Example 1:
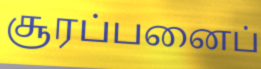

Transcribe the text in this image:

சூரப்பனைப்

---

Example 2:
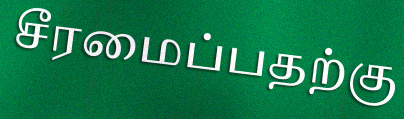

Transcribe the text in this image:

சீரமைப்பதற்கு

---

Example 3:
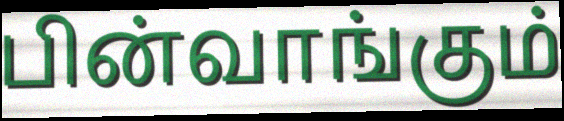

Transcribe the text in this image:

பின்வாங்கும்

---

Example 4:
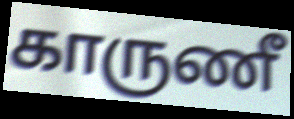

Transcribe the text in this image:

காருணீ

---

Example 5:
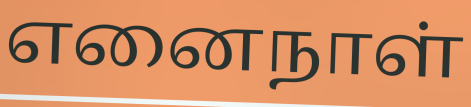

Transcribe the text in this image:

எனைநாள்